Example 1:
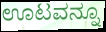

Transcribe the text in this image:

ಊಟವನ್ನೂ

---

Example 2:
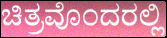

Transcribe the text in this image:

ಚಿತ್ರವೊಂದರಲ್ಲಿ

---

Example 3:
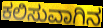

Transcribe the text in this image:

ಕಲಿಸುವಾಗಿನ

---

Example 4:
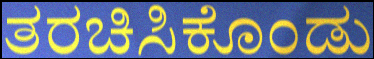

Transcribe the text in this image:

ತರಚಿಸಿಕೊಂಡು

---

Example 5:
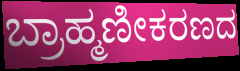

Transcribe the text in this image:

ಬ್ರಾಹ್ಮಣೀಕರಣದ